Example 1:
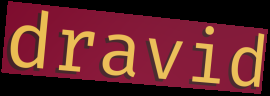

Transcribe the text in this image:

dravid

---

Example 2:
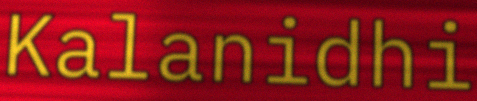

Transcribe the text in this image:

Kalanidhi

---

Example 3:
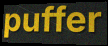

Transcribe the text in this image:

puffer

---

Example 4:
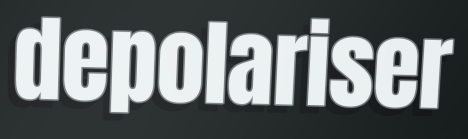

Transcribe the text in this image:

depolariser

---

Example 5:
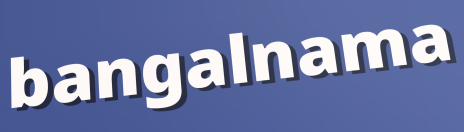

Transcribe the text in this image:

bangalnama